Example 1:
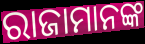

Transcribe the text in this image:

ରାଜାମାନଙ୍କ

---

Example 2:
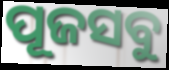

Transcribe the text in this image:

ପୂଜସବୁ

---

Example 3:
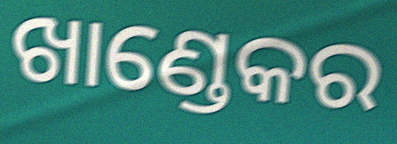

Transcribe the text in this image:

ଖାଣ୍ଡେକର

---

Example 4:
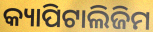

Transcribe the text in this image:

କ୍ୟାପିଟାଲିଜିମ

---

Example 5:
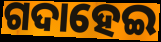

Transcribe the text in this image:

ଗଦାହେଇ